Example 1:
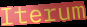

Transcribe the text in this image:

Iterum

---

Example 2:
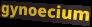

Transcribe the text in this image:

gynoecium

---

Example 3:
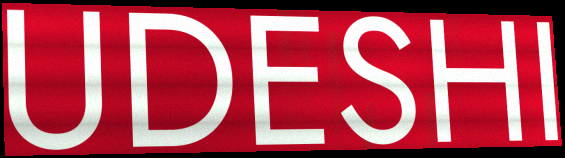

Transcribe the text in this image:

UDESHI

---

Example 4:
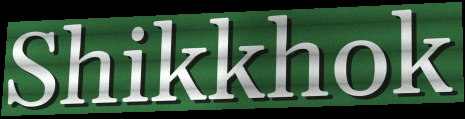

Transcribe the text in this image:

Shikkhok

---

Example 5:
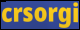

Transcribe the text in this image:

crsorgi